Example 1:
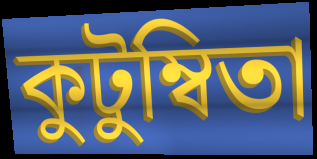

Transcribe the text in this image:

কুটুম্বিতা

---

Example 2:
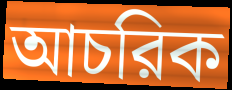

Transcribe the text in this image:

আচরিক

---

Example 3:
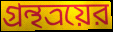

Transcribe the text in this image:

গ্রন্থত্রয়ের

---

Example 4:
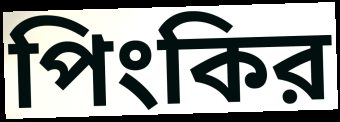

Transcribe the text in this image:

পিংকির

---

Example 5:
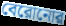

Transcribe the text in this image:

বেরোনোর